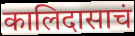
कालिदासाचं